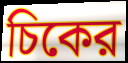
চিকের